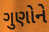
ગુણોને